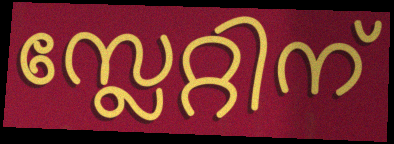
സ്ലേറ്റിന്